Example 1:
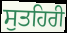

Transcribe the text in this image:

ਸੁਤਹਿਰੀ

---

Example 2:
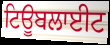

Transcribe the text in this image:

ਟਿਊਬਲਾਈਟ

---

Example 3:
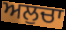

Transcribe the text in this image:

ਅਲੁਚਾ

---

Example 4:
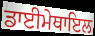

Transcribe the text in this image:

ਡਾਈਮੇਥਾਇਲ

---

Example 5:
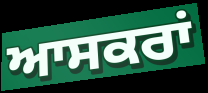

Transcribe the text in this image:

ਆਸਕਰਾਂ